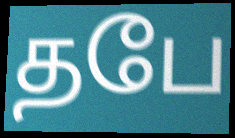
தபே